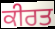
ਕੀਰਤ